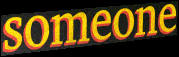
someone